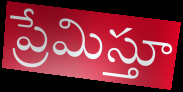
ప్రేమిస్తూ